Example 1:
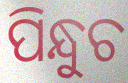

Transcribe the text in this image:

ପିନ୍ଧୁଚ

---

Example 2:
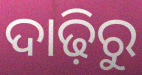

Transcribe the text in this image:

ଦାଢ଼ିରୁ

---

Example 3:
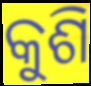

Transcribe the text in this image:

କୁଶି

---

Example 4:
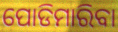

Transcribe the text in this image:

ପୋଡିମାରିବା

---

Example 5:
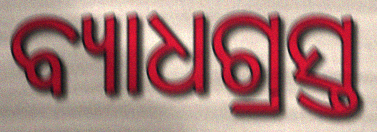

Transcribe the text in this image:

ବ୍ୟାଧଗ୍ରସ୍ତ